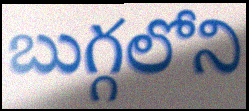
బుగ్గలోని